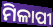
ମିଳାପୀ